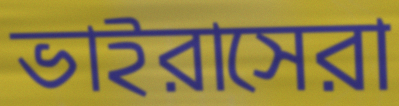
ভাইরাসেরা